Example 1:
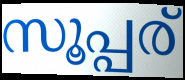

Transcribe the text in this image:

സൂപ്പര്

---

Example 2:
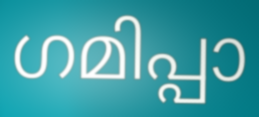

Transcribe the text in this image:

ഗമിപ്പാ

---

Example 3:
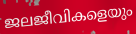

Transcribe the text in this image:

ജലജീവികളെയും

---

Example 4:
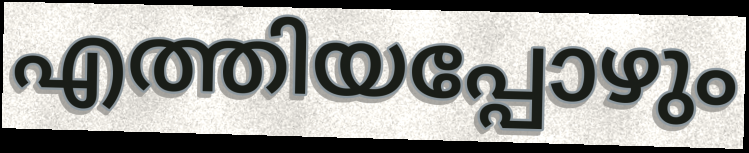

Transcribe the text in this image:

എത്തിയപ്പോഴും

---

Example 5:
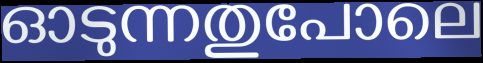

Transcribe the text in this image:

ഓടുന്നതുപോലെ